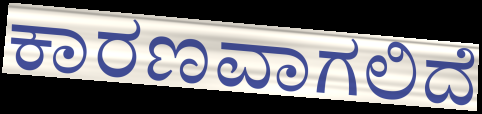
ಕಾರಣವಾಗಲಿದೆ